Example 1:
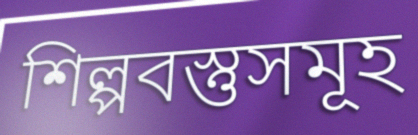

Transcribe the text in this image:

শিল্পবস্তুসমূহ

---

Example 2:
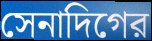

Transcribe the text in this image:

সেনাদিগের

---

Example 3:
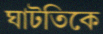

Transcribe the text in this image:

ঘাটতিকে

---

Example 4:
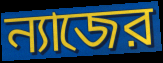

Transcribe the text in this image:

ন্যাজের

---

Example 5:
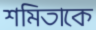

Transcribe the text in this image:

শমিতাকে